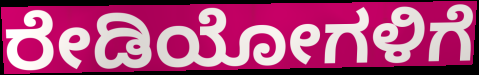
ರೇಡಿಯೋಗಳಿಗೆ